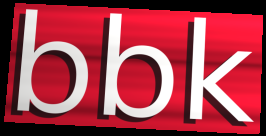
bbk